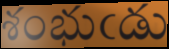
శంభుఁడు